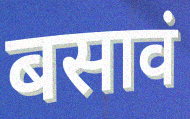
बसावं